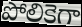
పోలికెగా